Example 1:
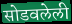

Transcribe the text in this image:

सोडवलेली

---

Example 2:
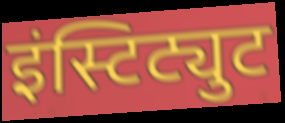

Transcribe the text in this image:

इंस्टिट्युट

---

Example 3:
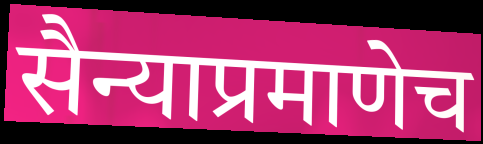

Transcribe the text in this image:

सैन्याप्रमाणेच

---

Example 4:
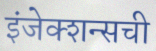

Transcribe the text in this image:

इंजेक्शन्सची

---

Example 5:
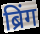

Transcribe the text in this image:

ब्रिंग